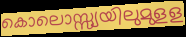
കൊലൊസ്സ്യയിലുമുളള